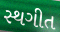
સ્થગીત